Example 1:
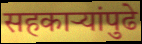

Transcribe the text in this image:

सहकाऱ्यांपुढे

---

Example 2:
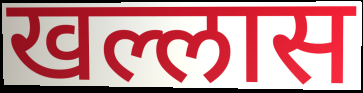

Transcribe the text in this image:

खल्लास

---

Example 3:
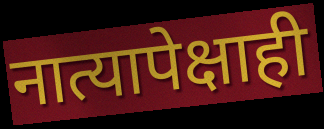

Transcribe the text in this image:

नात्यापेक्षाही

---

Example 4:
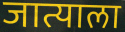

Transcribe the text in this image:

जात्याला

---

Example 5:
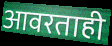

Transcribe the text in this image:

आवरताही